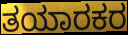
ತಯಾರಕರ